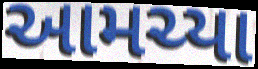
આમચ્યા